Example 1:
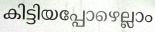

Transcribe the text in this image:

കിട്ടിയപ്പോഴെല്ലാം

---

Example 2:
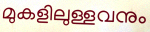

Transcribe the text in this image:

മുകളിലുള്ളവനും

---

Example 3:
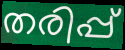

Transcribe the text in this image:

തരിപ്പ്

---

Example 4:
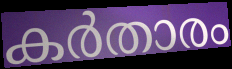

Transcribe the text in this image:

കർതാരം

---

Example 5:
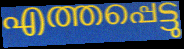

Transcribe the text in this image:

എത്തപ്പെട്ടു